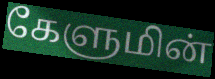
கேளுமின்